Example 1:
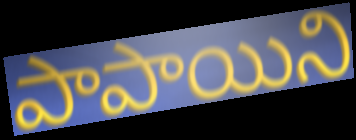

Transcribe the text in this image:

పాపాయిని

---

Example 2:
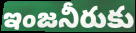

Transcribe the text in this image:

ఇంజనీరుకు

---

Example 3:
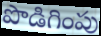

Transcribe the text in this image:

పొడిగింపు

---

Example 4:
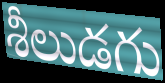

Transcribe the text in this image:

శీలుడగు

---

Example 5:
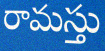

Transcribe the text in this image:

రామస్తు